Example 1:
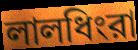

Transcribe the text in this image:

লালধিংরা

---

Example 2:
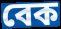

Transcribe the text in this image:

বেক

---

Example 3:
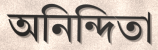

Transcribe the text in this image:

অনিন্দিতা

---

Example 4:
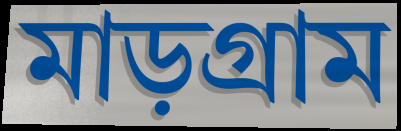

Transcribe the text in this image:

মাড়গ্রাম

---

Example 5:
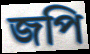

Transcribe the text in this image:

জপি